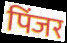
पिंजर